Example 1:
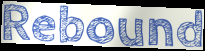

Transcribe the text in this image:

Rebound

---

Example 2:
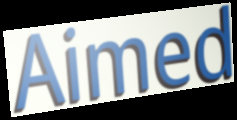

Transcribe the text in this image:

Aimed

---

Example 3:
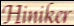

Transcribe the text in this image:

Hiniker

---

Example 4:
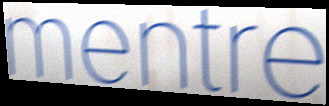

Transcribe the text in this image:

mentre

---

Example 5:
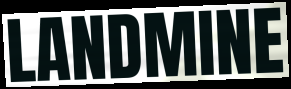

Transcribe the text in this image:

LANDMINE